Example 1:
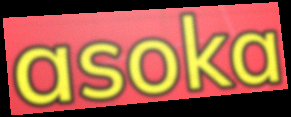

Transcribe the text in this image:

asoka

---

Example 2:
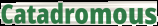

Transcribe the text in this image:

Catadromous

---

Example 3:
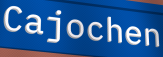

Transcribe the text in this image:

Cajochen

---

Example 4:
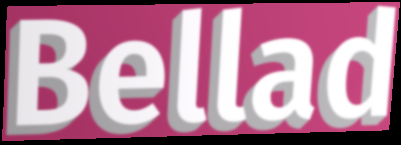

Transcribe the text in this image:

Bellad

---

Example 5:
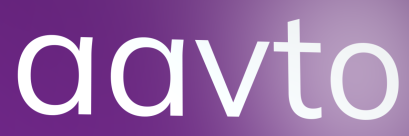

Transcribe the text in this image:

aavto